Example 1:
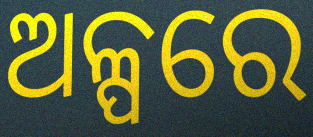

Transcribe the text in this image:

ଅଳ୍ପରେ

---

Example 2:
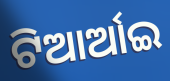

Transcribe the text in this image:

ଟିଆର୍ଆଇ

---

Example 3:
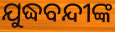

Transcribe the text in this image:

ଯୁଦ୍ଧବନ୍ଦୀଙ୍କ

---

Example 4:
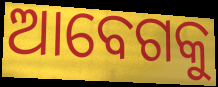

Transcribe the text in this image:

ଆବେଗକୁ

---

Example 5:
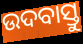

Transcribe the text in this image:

ଉଦବାସ୍ତୁ